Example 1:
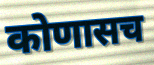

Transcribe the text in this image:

कोणासच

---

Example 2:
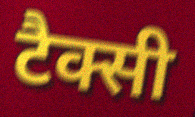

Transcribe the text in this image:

टैक्सी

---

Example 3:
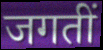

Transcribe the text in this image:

जगतीं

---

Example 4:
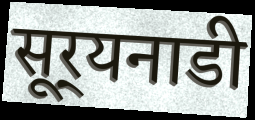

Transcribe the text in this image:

सूर्यनाडी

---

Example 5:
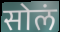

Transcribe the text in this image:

सोलं